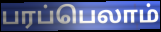
பரப்பெலாம்